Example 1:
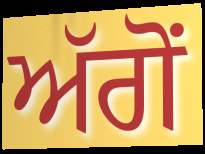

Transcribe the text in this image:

ਅੱਗੋਂ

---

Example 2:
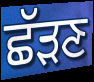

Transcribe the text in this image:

ਛੱੜਣ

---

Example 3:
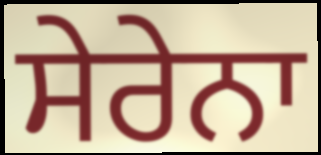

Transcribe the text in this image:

ਸੇਰੇਨਾ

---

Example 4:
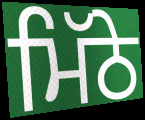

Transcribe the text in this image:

ਮਿੱਠੇ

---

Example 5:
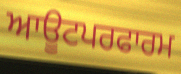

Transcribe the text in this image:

ਆਊਟਪਰਫਾਰਮ